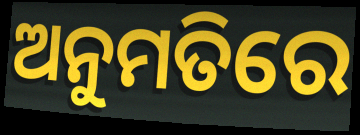
ଅନୁମତିରେ